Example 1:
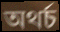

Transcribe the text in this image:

অথৰ্চ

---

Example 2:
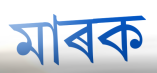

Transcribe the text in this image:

মাৰক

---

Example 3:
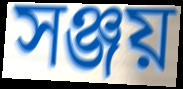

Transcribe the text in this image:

সঞ্জয়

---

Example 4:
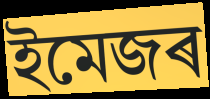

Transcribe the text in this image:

ইমেজৰ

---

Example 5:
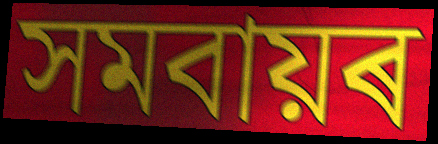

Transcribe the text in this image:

সমবায়ৰ